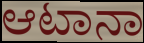
ಆಟಾನಾ